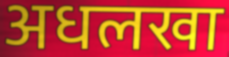
अधलखा